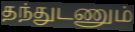
தந்துடணும்